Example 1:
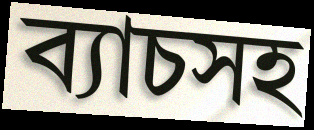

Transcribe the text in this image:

ব্যাচসহ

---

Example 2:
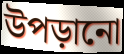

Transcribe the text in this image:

উপড়ানো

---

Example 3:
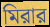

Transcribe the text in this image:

মিরার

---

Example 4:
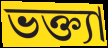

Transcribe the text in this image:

ভক্ত্যা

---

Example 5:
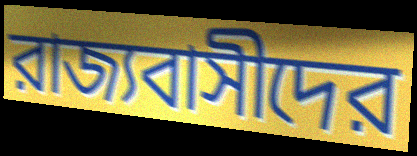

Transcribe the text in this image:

রাজ্যবাসীদের